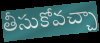
తీసుకోవచ్చా